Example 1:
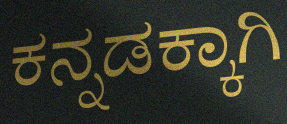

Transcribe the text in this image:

ಕನ್ನಡಕ್ಕಾಗಿ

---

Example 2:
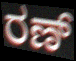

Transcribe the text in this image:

ರಣ್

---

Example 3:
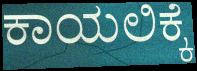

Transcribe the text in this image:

ಕಾಯಲಿಕ್ಕೆ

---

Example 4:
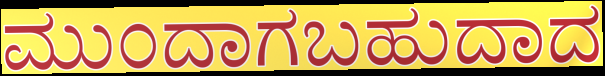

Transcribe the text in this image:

ಮುಂದಾಗಬಹುದಾದ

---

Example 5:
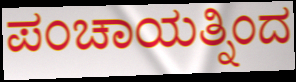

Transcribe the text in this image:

ಪಂಚಾಯತ್ನಿಂದ